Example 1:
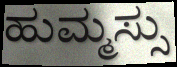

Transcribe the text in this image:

ಹುಮ್ಮಸ್ಸು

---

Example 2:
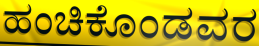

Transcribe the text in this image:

ಹಂಚಿಕೊಂಡವರ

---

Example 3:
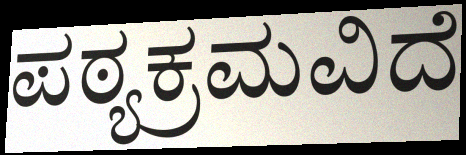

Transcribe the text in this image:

ಪಠ್ಯಕ್ರಮವಿದೆ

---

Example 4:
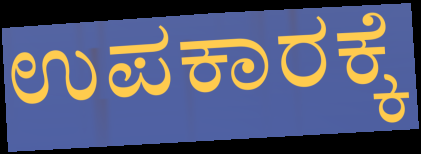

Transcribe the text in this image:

ಉಪಕಾರಕ್ಕೆ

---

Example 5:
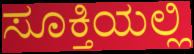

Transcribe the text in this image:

ಸೂಕ್ತಿಯಲ್ಲಿ